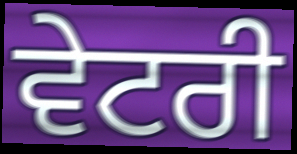
ਵੇਟਰੀ